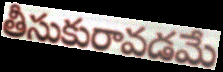
తీసుకురావడమే